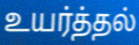
உயர்த்தல்